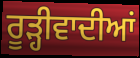
ਰੂੜ੍ਹੀਵਾਦੀਆਂ